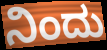
ನಿಂದು